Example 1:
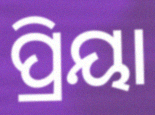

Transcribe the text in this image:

ପ୍ରିୟା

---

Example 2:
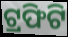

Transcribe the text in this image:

ଟ୍ରଫିଟି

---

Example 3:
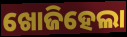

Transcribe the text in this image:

ଖୋଜିହେଲା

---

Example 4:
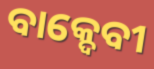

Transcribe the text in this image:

ବାକ୍ଦେବୀ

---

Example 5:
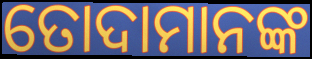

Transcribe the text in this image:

ତୋଦାମାନଙ୍କ